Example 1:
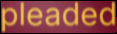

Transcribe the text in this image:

pleaded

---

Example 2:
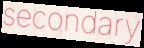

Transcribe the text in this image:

secondary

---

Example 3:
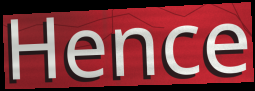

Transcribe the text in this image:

Hence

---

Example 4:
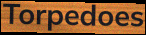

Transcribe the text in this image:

Torpedoes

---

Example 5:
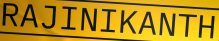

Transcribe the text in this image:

RAJINIKANTH